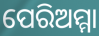
ପେରିଅମ୍ମା